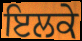
ਇਲਕੇ